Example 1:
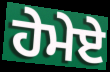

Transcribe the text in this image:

ਹੇਮੇਏ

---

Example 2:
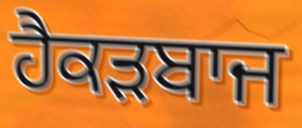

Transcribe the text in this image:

ਹੈਕੜਬਾਜ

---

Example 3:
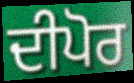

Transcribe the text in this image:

ਦੀਪੋਰ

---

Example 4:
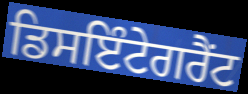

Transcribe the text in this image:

ਡਿਸਇੰਟੇਗਰੈਂਟ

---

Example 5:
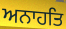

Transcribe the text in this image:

ਅਨਾਹਤਿ